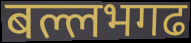
बल्लभगढ